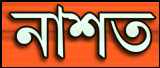
নাশত